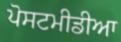
ਪੋਸਟਮੀਡੀਆ